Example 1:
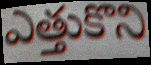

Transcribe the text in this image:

ఎత్తుకొని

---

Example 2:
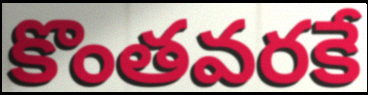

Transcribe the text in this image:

కొంతవరకే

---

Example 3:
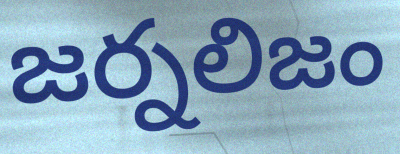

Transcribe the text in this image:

జర్నలిజం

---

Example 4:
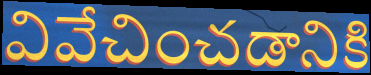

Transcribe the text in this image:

వివేచించడానికి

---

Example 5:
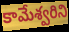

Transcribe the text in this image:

కామేశ్వరిని